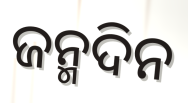
ଜନ୍ମଦିନ